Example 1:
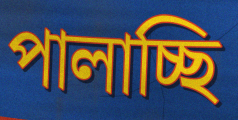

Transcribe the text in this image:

পালাচ্ছি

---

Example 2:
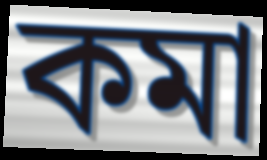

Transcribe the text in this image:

কমা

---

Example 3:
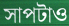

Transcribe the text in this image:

সাপটাও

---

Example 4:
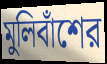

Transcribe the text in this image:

মুলিবাঁশের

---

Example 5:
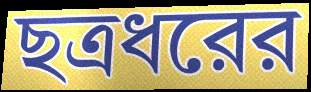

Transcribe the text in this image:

ছত্রধরের